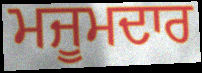
ਮਜੂਮਦਾਰ